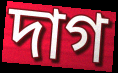
দাগ